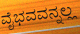
ವೈಭವವನ್ನಲ್ಲ